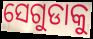
ସେଗୁଡାକୁ